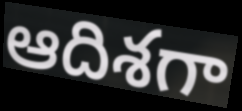
ఆదిశగా